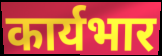
कार्यभार